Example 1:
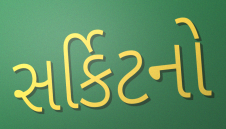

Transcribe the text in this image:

સર્કિટનો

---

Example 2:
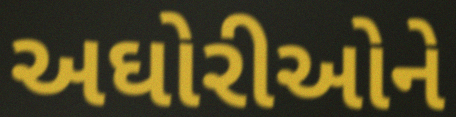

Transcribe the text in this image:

અઘોરીઓને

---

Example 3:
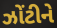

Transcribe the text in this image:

ઝોંટીને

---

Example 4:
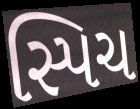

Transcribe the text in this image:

સ્પિચ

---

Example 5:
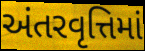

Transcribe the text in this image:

અંતરવૃત્તિમાં